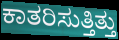
ಕಾತರಿಸುತ್ತಿತ್ತು